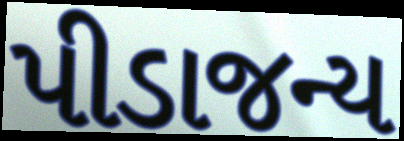
પીડાજન્ય